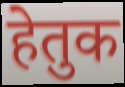
हेतुक